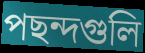
পছন্দগুলি